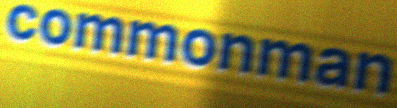
commonman